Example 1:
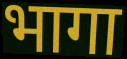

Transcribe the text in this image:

भागा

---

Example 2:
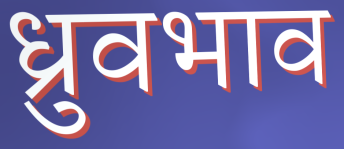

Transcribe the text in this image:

ध्रुवभाव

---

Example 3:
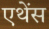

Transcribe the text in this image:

एथेंस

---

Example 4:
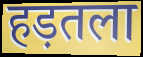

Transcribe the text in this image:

हड़तला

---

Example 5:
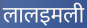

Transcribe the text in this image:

लालइमली